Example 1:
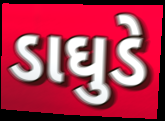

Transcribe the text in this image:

ડાઘુડે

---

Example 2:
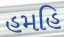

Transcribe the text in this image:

હમહિ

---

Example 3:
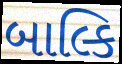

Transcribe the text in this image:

બાલ્કિ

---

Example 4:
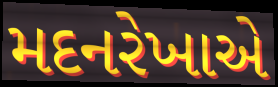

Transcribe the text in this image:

મદનરેખાએ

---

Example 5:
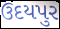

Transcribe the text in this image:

ઉદયપુર